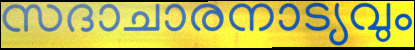
സദാചാരനാട്യവും